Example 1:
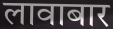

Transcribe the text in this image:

लावाबार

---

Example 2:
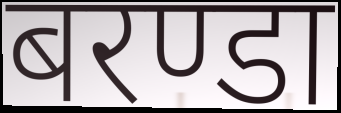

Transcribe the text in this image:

बरण्डा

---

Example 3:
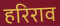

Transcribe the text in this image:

हरिराव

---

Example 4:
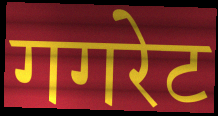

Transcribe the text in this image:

गगरेट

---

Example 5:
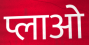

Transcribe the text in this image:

प्लाओ